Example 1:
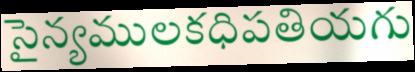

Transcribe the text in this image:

సైన్యములకధిపతియగు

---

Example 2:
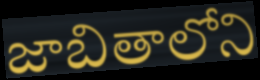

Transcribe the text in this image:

జాబితాలోని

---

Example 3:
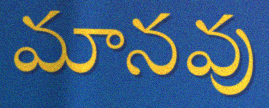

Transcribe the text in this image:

మానవు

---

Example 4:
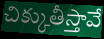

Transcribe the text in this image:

చిక్కుతీస్తావే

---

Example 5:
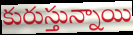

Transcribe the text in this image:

కురుస్తున్నాయి